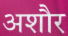
अशौर